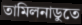
তামিলনাডুতে